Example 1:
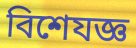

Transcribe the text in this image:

বিশেযজ্ঞ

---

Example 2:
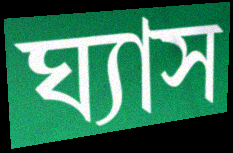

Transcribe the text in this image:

ঘ্যাস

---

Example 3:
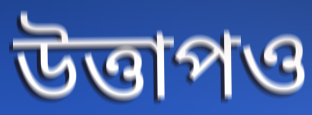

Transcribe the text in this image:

উত্তাপও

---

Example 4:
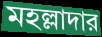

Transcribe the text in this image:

মহল্লাদার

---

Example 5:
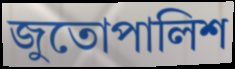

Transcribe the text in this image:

জুতোপালিশ